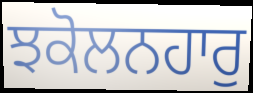
ਝਕੋਲਨਹਾਰੁ